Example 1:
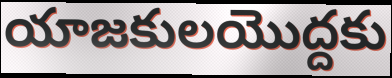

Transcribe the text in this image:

యాజకులయొద్దకు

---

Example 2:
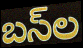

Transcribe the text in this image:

బస్‌ల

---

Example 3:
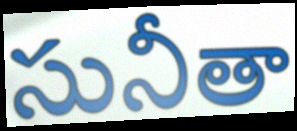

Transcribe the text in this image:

సునీతా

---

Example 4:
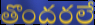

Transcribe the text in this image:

తొందరలే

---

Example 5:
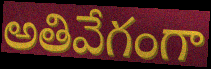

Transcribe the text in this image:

అతివేగంగా